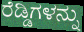
ರೆಡ್ಡಿಗಳನ್ನು